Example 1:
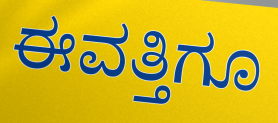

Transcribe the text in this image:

ಈವತ್ತಿಗೂ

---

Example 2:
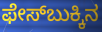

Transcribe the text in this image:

ಫೇಸ್‌ಬುಕ್ಕಿನ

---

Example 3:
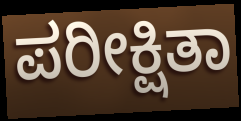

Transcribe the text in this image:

ಪರೀಕ್ಷಿತಾ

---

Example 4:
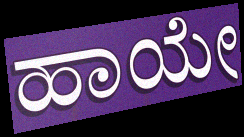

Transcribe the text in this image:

ಹಾಯೇ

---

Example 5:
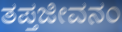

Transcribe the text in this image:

ತಪ್ತಜೀವನಂ